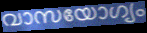
വാസയോഗ്യം